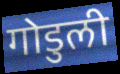
गोडुली